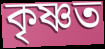
কৃষ্ণত